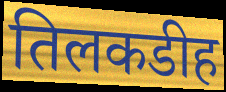
तिलकडीह